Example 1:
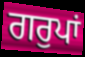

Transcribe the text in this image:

ਗਰੁਪਾਂ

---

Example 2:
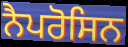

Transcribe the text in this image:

ਨੈਪਰੋਸਿਨ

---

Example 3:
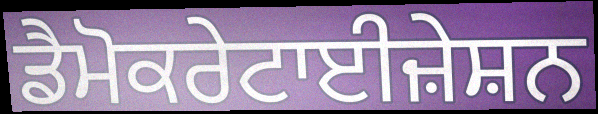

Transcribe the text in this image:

ਡੈਮੋਕਰੇਟਾਈਜ਼ੇਸ਼ਨ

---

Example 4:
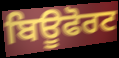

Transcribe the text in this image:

ਬਿਊਫੋਰਟ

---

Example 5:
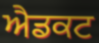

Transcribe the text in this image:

ਐਡਕਟ